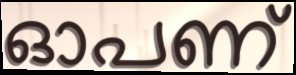
ഓപണ്